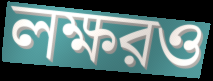
লক্ষরও